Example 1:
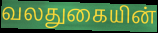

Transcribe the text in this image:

வலதுகையின்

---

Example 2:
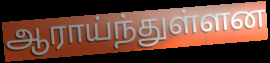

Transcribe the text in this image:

ஆராய்ந்துள்ளன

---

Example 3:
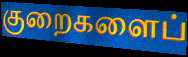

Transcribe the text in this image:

குறைகளைப்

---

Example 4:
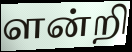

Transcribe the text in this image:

ளன்றி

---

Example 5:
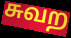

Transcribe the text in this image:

சுவற